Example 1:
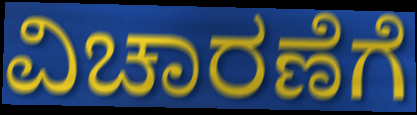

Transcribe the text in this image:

ವಿಚಾರಣೆಗೆ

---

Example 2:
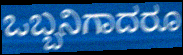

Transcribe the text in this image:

ಒಬ್ಬನಿಗಾದರೂ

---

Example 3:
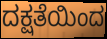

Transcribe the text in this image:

ದಕ್ಷತೆಯಿಂದ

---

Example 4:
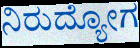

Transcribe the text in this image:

ನಿರುದ್ಯೋಗ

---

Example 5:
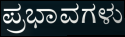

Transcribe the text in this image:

ಪ್ರಭಾವಗಳು